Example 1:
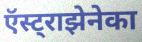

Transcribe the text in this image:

ऍस्ट्राझेनेका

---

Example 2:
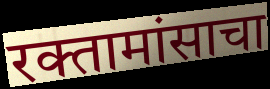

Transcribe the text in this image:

रक्तामांसाचा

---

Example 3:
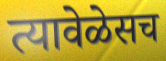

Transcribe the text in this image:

त्यावेळेसच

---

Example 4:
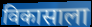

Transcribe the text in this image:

विकासाला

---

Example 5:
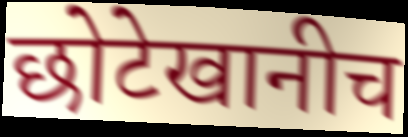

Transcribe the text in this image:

छोटेखानीच